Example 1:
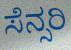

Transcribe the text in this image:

ಸೆನ್ಸರಿ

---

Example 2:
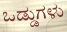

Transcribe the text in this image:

ಒಡ್ಡುಗಳು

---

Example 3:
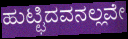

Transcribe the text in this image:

ಹುಟ್ಟಿದವನಲ್ಲವೇ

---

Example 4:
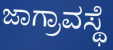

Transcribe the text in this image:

ಜಾಗ್ರಾವಸ್ಥೆ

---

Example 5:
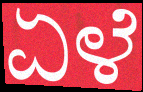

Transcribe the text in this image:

ಏಳೆ